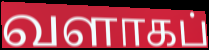
வளாகப்